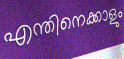
എന്തിനെക്കാളും